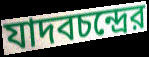
যাদবচন্দ্রের